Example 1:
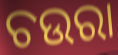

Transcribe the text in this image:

ଚଉରା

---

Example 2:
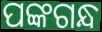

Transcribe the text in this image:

ପଙ୍କଗନ୍ଧ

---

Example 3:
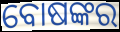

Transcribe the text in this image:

ବୋଷଙ୍କର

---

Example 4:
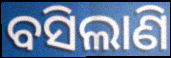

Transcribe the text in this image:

ବସିଲାଣି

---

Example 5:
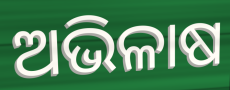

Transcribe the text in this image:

ଅଭିଳାଷ